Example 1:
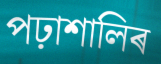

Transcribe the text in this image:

পঢ়াশালিৰ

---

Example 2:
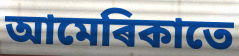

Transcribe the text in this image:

আমেৰিকাতে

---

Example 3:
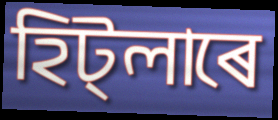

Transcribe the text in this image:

হিট্‌লাৰে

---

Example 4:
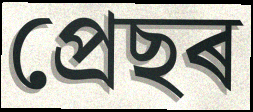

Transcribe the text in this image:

প্ৰেছৰ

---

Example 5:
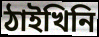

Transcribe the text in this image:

ঠাইখিনি